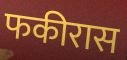
फकीरास